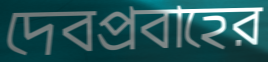
দেবপ্রবাহের